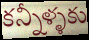
కన్నీళ్ళకు